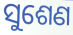
ସୁଶେଣ